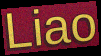
Liao